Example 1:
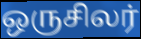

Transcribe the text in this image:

ஒருசிலர்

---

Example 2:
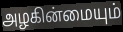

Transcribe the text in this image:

அழகின்மையும்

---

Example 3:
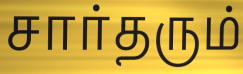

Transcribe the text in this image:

சார்தரும்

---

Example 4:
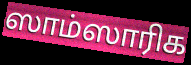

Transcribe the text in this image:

ஸாம்ஸாரிக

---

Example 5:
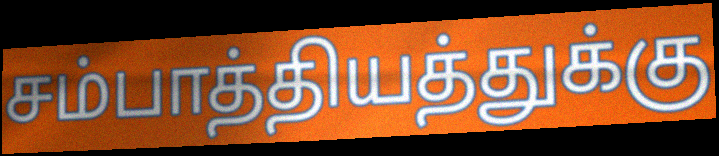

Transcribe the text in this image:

சம்பாத்தியத்துக்கு